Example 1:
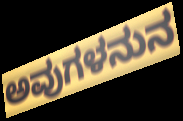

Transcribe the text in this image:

ಅವುಗಳನುನ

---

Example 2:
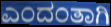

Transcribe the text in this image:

ಎಂದಂತಾಗಿ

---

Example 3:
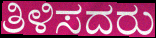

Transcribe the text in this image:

ತಿಳಿಸದರು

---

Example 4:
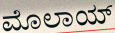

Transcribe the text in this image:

ಮೊಲಾಯ್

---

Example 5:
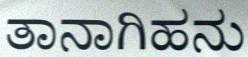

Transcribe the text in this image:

ತಾನಾಗಿಹನು